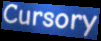
Cursory